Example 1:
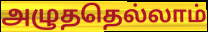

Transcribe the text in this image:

அழுததெல்லாம்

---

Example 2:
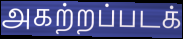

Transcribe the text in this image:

அகற்றப்படக்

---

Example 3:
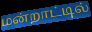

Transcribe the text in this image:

மன்றாட்டில்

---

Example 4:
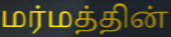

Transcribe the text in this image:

மர்மத்தின்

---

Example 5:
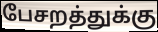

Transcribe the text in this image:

பேசறத்துக்கு